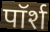
पॉर्श